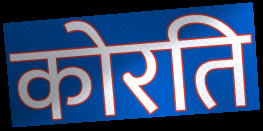
कोरति